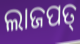
ଲାଜପତ୍